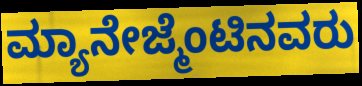
ಮ್ಯಾನೇಜ್ಮೆಂಟಿನವರು